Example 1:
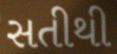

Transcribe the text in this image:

સતીથી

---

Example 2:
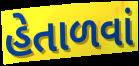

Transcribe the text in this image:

હેતાળવાં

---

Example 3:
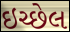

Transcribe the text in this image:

ઇચ્છેલ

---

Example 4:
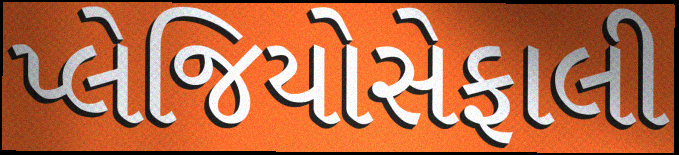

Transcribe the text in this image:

પ્લેજિયોસેફાલી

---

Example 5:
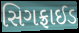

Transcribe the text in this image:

સિગફ્રાઈડ